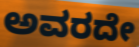
ಅವರದೇ